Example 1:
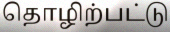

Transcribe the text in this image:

தொழிற்பட்டு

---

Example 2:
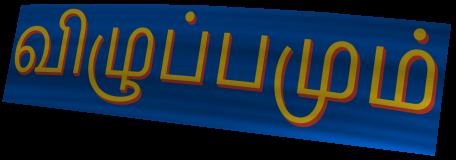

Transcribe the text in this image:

விழுப்பமும்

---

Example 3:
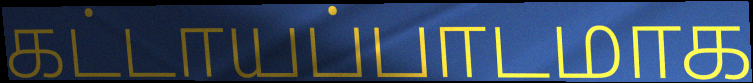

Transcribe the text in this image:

கட்டாயப்பாடமாக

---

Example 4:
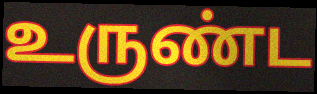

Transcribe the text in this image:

உருண்ட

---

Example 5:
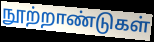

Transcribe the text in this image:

நூற்றாண்டுகள்